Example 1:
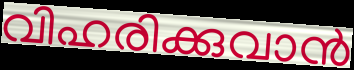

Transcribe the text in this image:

വിഹരിക്കുവാൻ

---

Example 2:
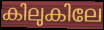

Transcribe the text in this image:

കിലുകിലേ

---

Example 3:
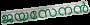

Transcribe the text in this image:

ജയസേനൻ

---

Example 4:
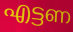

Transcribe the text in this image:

എട്ടണ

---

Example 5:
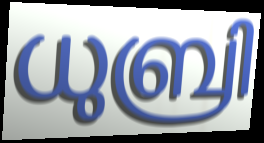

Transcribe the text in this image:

ധുബ്രി